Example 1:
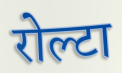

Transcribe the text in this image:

रोल्टा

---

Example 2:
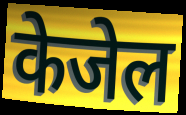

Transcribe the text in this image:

केजेल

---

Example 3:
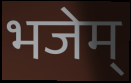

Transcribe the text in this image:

भजेम्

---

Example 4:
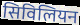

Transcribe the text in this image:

सिविलियन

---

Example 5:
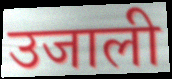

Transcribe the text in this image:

उजाली